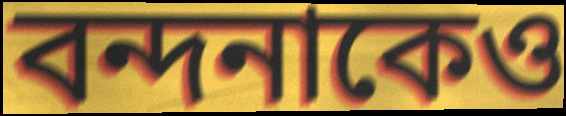
বন্দনাকেও